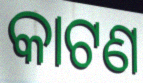
କାଟଣ